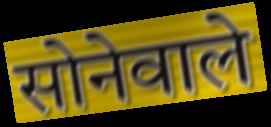
सोनेवाले